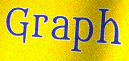
Graph